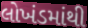
લોખંડમાંથી